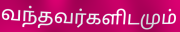
வந்தவர்களிடமும்